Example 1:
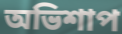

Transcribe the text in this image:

অভিশাপ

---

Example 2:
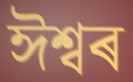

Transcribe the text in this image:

ঈশ্বৰ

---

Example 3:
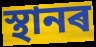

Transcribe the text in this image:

স্থানৰ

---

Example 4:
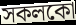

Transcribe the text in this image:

সকলকো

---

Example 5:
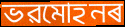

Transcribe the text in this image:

ভৱমোহনৰ